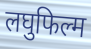
लघुफिल्म